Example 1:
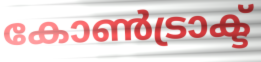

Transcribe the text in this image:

കോൺട്രാക്ട്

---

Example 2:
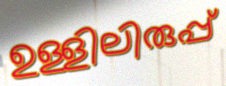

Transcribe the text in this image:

ഉള്ളിലിരുപ്പ്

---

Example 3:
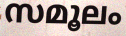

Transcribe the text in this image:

സമൂലം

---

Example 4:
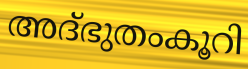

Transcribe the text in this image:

അദ്ഭുതംകൂറി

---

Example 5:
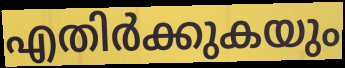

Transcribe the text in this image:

എതിർക്കുകയും